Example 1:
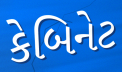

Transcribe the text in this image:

કેબિનેટ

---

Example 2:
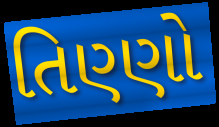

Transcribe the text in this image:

તિણ્ણો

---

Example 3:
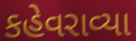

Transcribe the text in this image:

કહેવરાવ્યા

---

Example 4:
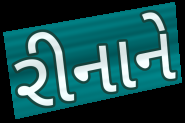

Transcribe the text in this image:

રીનાને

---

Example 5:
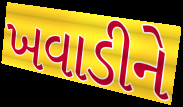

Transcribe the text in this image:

ખવાડીને